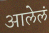
आलेलं